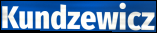
Kundzewicz